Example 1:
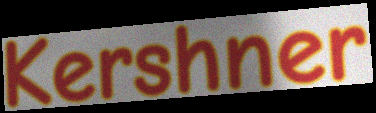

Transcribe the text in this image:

Kershner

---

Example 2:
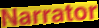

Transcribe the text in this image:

Narrator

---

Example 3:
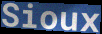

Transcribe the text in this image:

Sioux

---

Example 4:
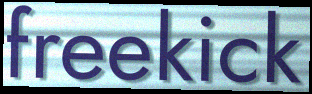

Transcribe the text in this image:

freekick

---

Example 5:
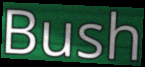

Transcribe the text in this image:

Bush